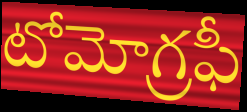
టోమోగ్రఫీ